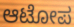
ಆಟೋಪ